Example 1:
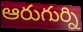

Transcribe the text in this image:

ఆరుగుర్ని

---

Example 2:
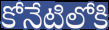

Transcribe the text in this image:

కోనేటిలోకి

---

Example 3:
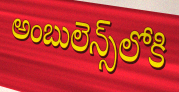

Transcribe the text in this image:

అంబులెన్స్‌లోకి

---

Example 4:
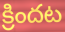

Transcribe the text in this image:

క్రిందట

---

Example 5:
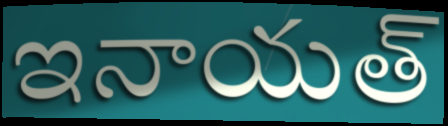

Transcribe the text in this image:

ఇనాయత్